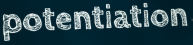
potentiation